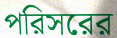
পরিসরের